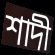
শাদী